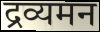
द्रव्यमन